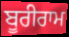
ਬੂਰੀਰਾਮ